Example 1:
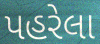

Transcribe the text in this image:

પહરેલા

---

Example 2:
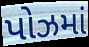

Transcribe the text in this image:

પોઝમાં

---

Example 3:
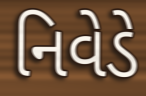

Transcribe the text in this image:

નિવેડે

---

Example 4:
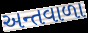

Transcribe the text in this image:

અન્તવાળા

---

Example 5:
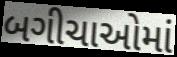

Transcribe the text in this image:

બગીચાઓમાં